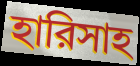
হারিসাহ